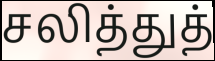
சலித்துத்